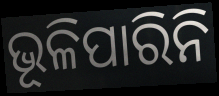
ଭୂଳିପାରିନି